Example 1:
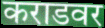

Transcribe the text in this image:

कराडवर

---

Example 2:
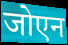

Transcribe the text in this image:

जोएन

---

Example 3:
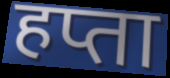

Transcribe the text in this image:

हप्ता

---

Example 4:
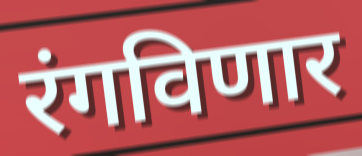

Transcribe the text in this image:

रंगविणार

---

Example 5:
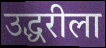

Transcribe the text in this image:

उद्धरीला